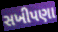
સખીપણા